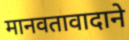
मानवतावादाने